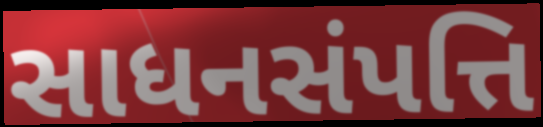
સાધનસંપત્તિ